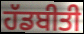
ਹੱਡਬੀਤੀ